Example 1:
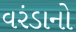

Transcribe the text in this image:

વરંડાનો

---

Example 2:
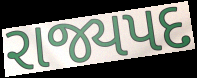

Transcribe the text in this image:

રાજ્યપદ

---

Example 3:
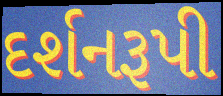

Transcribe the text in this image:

દર્શનરૂપી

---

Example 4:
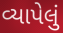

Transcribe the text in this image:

વ્યાપેલું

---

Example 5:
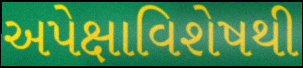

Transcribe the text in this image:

અપેક્ષાવિશેષથી